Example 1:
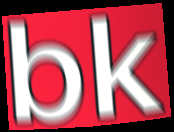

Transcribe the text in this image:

bk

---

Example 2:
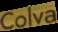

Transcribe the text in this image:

Colva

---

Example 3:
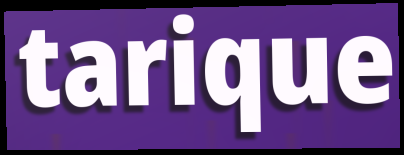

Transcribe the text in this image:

tarique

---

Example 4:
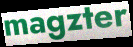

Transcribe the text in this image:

magzter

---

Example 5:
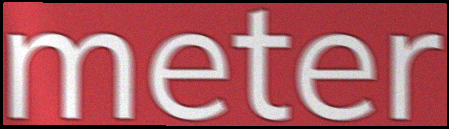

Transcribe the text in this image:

meter